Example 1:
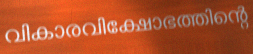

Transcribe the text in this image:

വികാരവിക്ഷോഭത്തിന്റെ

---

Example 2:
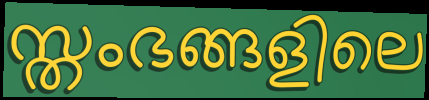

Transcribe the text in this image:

സ്തംഭങ്ങളിലെ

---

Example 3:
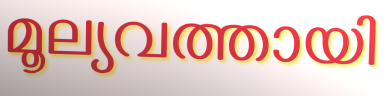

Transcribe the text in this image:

മൂല്യവത്തായി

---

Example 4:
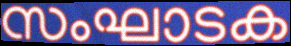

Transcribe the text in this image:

സംഘാടക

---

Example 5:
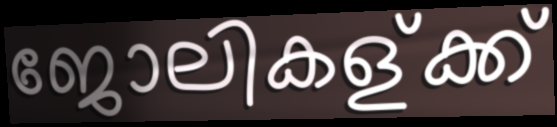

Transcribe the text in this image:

ജോലികള്ക്ക്